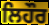
ਲਿਹੌਰ